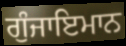
ਗੁੰਜਾਇਮਾਨ